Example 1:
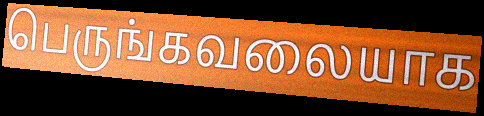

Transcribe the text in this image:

பெருங்கவலையாக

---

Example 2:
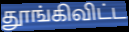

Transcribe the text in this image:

தூங்கிவிட்ட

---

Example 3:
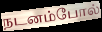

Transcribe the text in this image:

நடனம்போல்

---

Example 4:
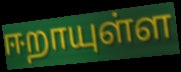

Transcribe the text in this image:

ஈறாயுள்ள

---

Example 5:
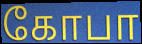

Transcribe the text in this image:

கோபா